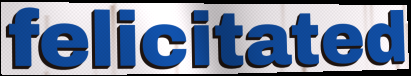
felicitated